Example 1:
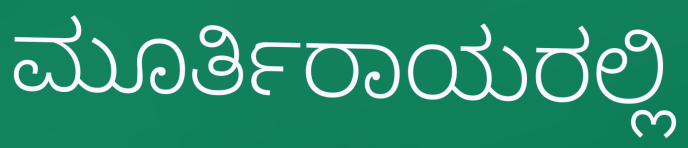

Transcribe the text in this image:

ಮೂರ್ತಿರಾಯರಲ್ಲಿ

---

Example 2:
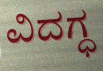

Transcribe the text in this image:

ವಿದಗ್ಧ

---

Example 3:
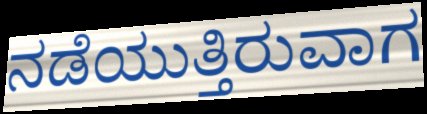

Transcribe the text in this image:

ನಡೆಯುತ್ತಿರುವಾಗ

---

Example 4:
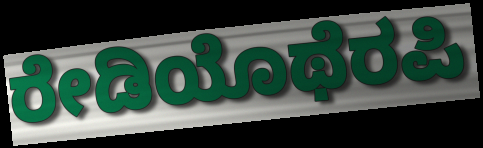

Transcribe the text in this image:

ರೇಡಿಯೊಥೆರಪಿ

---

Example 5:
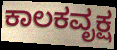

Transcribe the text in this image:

ಕಾಲಕವೃಕ್ಷ